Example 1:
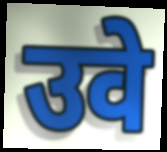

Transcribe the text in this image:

उवे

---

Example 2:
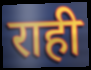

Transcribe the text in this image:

राही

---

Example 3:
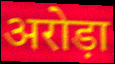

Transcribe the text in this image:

अरोड़ा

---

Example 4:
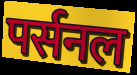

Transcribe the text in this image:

पर्सनल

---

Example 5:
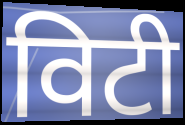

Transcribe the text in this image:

विटी